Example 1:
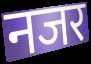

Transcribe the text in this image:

नजर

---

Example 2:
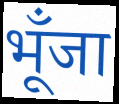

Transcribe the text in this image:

भूँजा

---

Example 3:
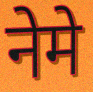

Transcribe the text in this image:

नेमे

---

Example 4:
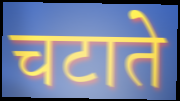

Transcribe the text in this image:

चटाते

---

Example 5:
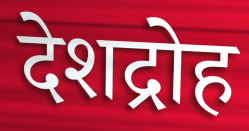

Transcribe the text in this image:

देशद्रोह